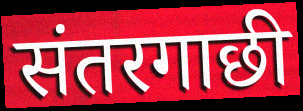
संतरगाछी